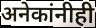
अनेकांनीही